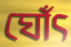
ঘোঁৎ